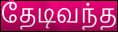
தேடிவந்த